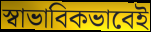
স্বাভাবিকভাবেই